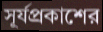
সূর্যপ্রকাশের